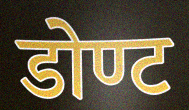
डोण्ट